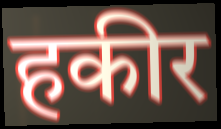
हकीर